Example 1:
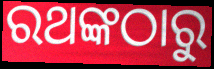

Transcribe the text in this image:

ରଥଙ୍କଠାରୁ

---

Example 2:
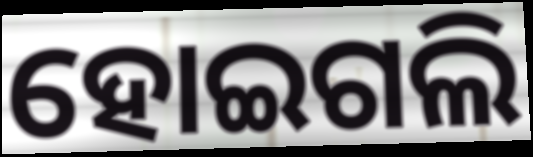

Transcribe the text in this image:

ହୋଇଗଲି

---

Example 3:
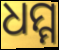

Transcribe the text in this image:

ଧମ୍ମ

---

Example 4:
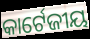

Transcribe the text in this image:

କାର୍ଟେଜୀୟ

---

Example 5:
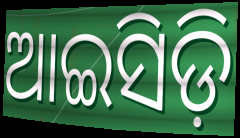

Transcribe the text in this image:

ଆଇସିଡ଼ି